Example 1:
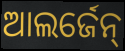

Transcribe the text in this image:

ଆଲର୍ଜେନ୍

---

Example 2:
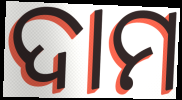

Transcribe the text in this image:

ଦାମ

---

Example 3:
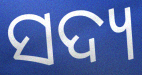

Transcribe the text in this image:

ସଦ୍ୟ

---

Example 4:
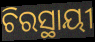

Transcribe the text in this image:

ଚିରସ୍ଥାୟୀ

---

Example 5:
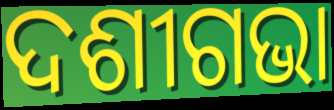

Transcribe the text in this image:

ଦଶୀଗଭା